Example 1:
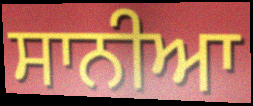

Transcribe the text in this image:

ਸਾਨੀਆ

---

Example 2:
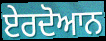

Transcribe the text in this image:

ਏਰਦੋਆਨ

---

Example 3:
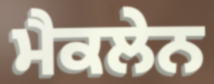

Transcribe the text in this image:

ਮੈਕਲੇਨ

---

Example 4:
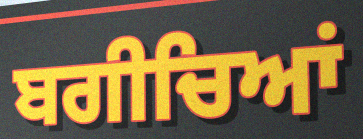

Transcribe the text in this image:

ਬਗੀਚਿਆਂ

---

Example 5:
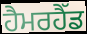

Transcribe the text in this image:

ਹੈਮਰਹੈੱਡ